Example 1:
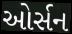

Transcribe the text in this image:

ઓર્સન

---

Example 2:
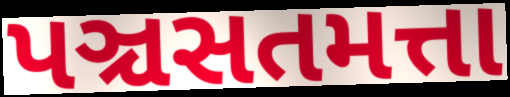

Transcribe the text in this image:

પઞ્ચસતમત્તા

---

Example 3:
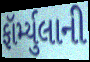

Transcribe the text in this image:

ફૉર્મ્યુલાની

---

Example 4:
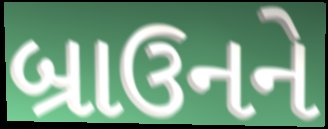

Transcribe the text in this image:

બ્રાઉનને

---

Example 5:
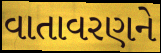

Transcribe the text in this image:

વાતાવરણને